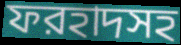
ফরহাদসহ